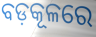
ବଡ଼କୂଳରେ